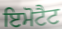
ਇਮੋਟੈਟ